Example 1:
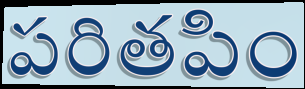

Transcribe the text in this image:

పరితపిం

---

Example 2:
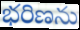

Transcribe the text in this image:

భరిణను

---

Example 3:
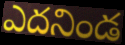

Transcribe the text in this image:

ఎదనిండ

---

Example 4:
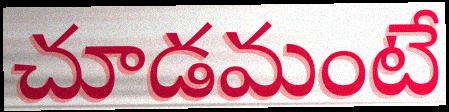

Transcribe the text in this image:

చూడమంటే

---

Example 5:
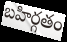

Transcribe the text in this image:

బహిర్గతం